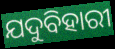
ଯଦୁବିହାରୀ